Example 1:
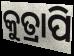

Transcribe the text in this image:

କୁତ୍ରାପି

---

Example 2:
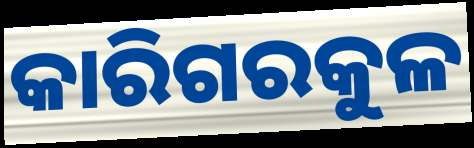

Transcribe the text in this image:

କାରିଗରକୁଳ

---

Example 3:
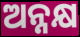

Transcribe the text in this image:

ଅନ୍ନକ୍ଷ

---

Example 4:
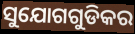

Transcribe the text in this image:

ସୁଯୋଗଗୁଡିକର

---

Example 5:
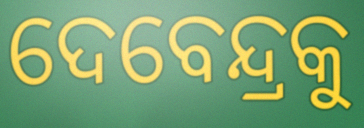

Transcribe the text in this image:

ଦେବେନ୍ଦ୍ରକୁ